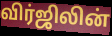
விர்ஜிலின்